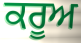
ਕਰੂਅ